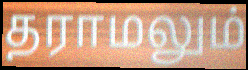
தராமலும்